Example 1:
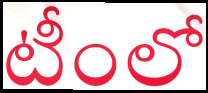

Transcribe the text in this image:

టీంలో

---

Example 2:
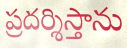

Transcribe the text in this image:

ప్రదర్శిస్తాను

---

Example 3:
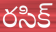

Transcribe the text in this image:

రసిక్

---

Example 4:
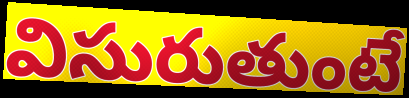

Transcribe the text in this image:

విసురుతుంటే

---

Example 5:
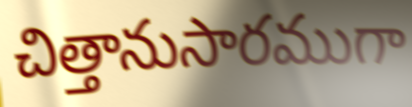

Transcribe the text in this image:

చిత్తానుసారముగా